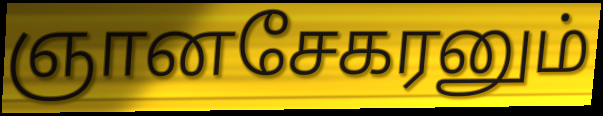
ஞானசேகரனும்